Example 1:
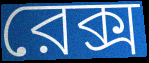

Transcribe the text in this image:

রেক্স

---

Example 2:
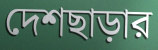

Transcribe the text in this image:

দেশছাড়ার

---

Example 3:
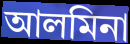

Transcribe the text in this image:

আলমিনা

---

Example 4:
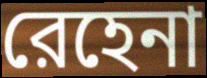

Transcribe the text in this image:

রেহেনা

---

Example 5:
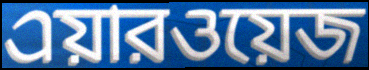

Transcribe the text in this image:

এয়ারওয়েজ